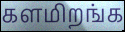
களமிறங்க